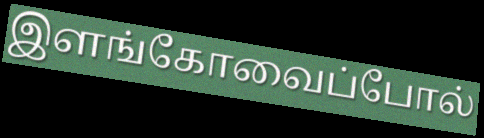
இளங்கோவைப்போல்